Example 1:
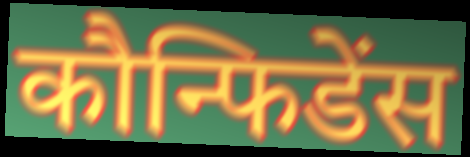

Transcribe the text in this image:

कौन्फिडेंस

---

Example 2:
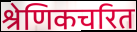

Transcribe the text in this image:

श्रेणिकचरित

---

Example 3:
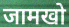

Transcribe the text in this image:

जामखो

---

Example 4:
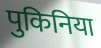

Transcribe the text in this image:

पुकिनिया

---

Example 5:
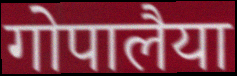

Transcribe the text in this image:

गोपालैया